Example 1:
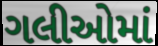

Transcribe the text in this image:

ગલીઓમાં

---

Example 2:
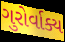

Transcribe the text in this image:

ગુરોર્વાક્ય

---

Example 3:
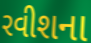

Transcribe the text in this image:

રવીશના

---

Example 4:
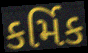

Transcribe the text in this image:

કર્મિક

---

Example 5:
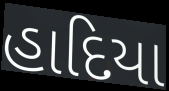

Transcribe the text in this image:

હાદિયા